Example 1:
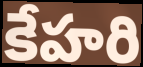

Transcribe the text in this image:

కేహరి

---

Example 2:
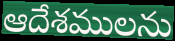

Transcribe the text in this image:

ఆదేశములను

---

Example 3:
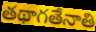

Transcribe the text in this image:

తథాగతేనాతి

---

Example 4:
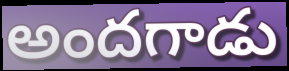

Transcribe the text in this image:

అందగాడు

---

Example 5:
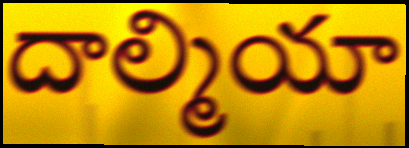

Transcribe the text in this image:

దాల్మియా